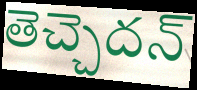
తెచ్చెదన్